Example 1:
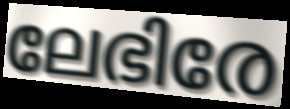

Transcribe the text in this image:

ലേഭിരേ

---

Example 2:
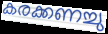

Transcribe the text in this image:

കരക്കണച്ചു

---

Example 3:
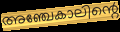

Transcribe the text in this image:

അഞ്ചേകാലിന്റെ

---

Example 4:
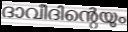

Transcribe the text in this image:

ദാവീദിന്റെയും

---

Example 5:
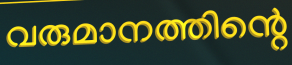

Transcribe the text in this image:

വരുമാനത്തിന്റെ